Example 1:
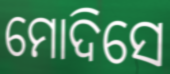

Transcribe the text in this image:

ମୋଦିସେ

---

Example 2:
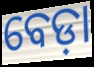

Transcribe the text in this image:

ବେଡ଼ା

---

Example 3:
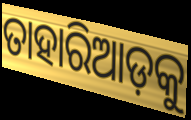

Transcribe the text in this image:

ତାହାରିଆଡ଼କୁ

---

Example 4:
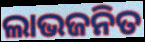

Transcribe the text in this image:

ଲାଭଜନିତ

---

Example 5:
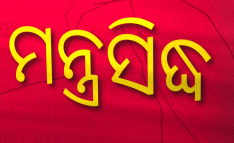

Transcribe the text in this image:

ମନ୍ତ୍ରସିଦ୍ଧ